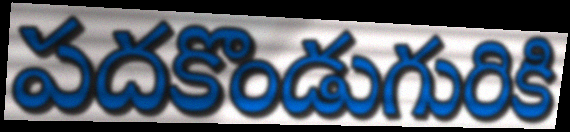
పదకొండుగురికి